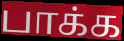
பாக்க